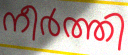
നീർത്തി